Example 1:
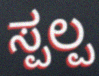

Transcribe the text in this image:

ಸ್ಪಲ್ಪ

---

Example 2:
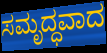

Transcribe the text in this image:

ಸಮೃದ್ಧವಾದ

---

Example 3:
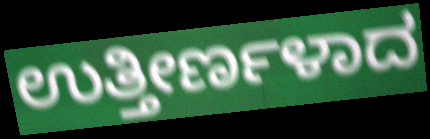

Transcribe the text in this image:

ಉತ್ತೀರ್ಣಳಾದ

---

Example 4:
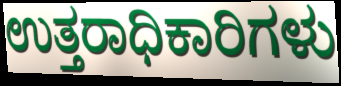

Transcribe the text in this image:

ಉತ್ತರಾಧಿಕಾರಿಗಳು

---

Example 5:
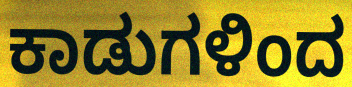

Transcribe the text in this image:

ಕಾಡುಗಳಿಂದ